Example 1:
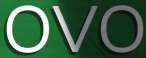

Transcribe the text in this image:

OVO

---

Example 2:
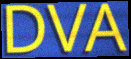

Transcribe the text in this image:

DVA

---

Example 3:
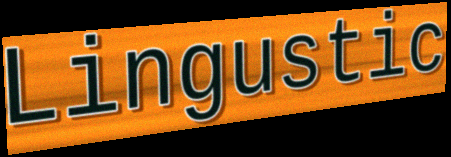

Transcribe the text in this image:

Lingustic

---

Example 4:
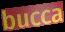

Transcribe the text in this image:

bucca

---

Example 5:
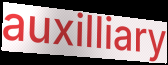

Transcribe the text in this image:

auxilliary